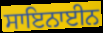
ਸਾਇਨਾਈਨ